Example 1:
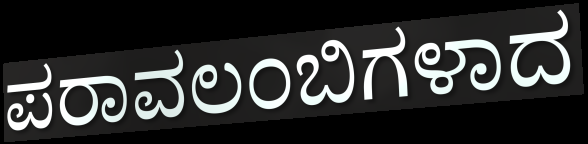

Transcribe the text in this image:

ಪರಾವಲಂಬಿಗಳಾದ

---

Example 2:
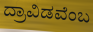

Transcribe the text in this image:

ದ್ರಾವಿಡವೆಂಬ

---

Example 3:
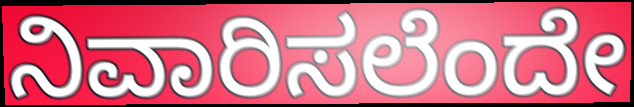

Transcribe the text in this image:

ನಿವಾರಿಸಲೆಂದೇ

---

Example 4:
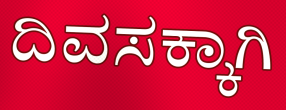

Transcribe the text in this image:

ದಿವಸಕ್ಕಾಗಿ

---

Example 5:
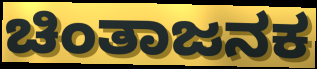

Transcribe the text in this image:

ಚಿಂತಾಜನಕ